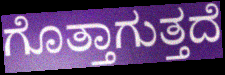
ಗೊತ್ತಾಗುತ್ತದೆ